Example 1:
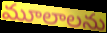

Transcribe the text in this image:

మూలాలను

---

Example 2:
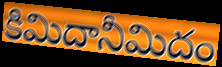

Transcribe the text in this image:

కిమిదానీమిదం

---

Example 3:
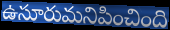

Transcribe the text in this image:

ఉసూరుమనిపించింది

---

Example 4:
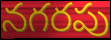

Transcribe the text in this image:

నగరపు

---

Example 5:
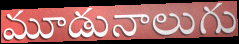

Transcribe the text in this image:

మూడునాలుగు